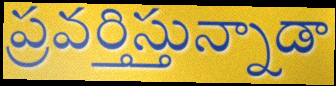
ప్రవర్తిస్తున్నాడా